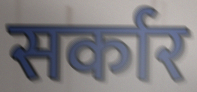
सर्कार